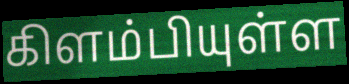
கிளம்பியுள்ள